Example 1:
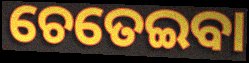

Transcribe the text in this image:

ଚେତେଇବା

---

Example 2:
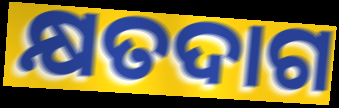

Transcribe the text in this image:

କ୍ଷତଦାଗ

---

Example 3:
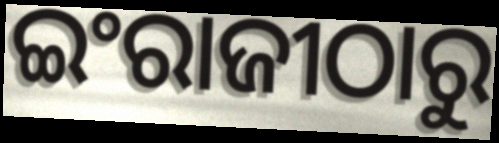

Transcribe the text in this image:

ଇଂରାଜୀଠାରୁ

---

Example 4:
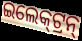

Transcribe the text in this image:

ଇଲେକ୍‍ଟ୍ରନ୍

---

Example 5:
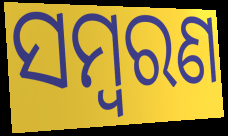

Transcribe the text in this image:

ସମ୍ଵରଣ